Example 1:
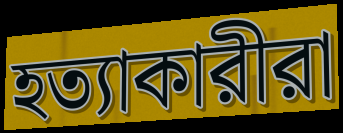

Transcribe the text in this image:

হত্যাকারীরা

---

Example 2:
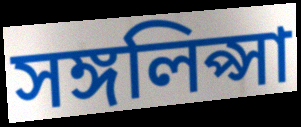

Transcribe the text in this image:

সঙ্গলিপ্সা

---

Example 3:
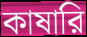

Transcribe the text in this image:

কাষারি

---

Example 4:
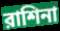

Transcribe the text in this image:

রাশিনা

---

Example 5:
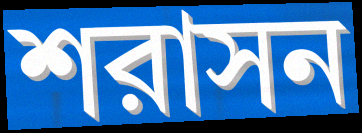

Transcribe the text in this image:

শরাসন